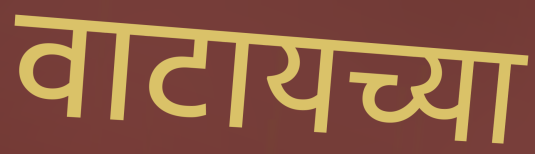
वाटायच्या